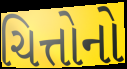
ચિત્તોનો